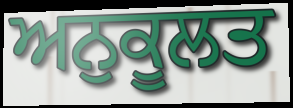
ਅਨੁਕੂਲਤ